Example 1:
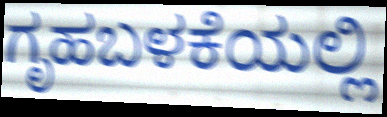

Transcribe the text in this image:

ಗೃಹಬಳಕೆಯಲ್ಲಿ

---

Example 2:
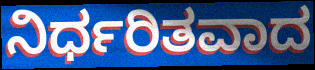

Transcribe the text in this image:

ನಿರ್ಧರಿತವಾದ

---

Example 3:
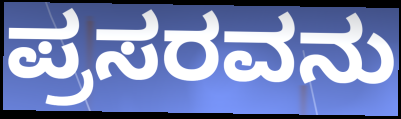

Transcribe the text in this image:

ಪ್ರಸರವನು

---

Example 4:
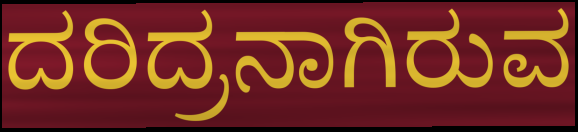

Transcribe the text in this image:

ದರಿದ್ರನಾಗಿರುವ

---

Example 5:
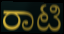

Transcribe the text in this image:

ರಾಟಿ